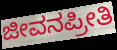
ಜೀವನಪ್ರೀತಿ